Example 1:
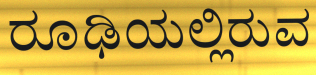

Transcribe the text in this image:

ರೂಢಿಯಲ್ಲಿರುವ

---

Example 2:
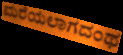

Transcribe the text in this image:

ಮರೆಯಲಾಗದಂಥ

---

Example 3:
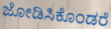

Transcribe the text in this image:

ಜೋಡಿಸಿಕೊಂಡರೆ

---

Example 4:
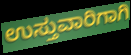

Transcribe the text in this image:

ಉಸ್ತುವಾರಿಗಾಗಿ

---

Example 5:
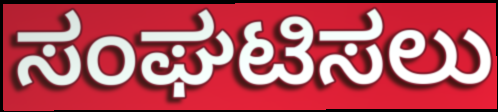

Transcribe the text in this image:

ಸಂಘಟಿಸಲು